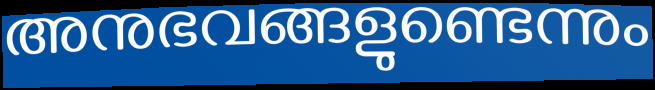
അനുഭവങ്ങളുണ്ടെന്നും